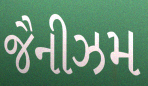
જૈનીઝમ